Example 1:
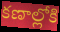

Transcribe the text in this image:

కణాల్లోకి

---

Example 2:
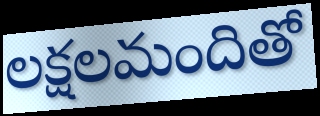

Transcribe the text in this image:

లక్షలమందితో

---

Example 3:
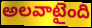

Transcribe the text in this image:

అలవాటైంది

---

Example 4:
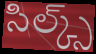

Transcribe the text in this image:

సిల్క్స్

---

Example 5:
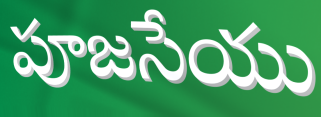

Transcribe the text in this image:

పూజసేయు